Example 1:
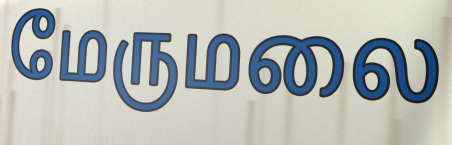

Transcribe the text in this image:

மேருமலை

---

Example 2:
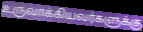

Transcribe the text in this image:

உருவாக்கியவர்களுக்கு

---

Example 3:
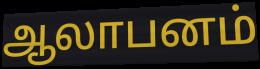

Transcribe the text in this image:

ஆலாபனம்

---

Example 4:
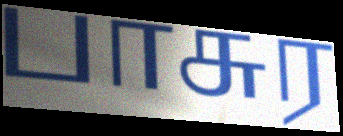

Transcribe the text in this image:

பாசுர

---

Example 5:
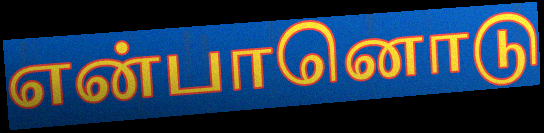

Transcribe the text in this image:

என்பானொடு